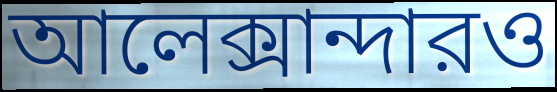
আলেক্সান্দারও